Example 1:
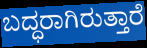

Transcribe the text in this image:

ಬದ್ಧರಾಗಿರುತ್ತಾರೆ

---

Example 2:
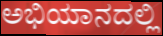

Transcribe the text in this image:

ಅಭಿಯಾನದಲ್ಲಿ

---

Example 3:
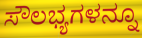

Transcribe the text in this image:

ಸೌಲಭ್ಯಗಳನ್ನೂ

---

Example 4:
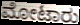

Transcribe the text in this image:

ಮೋಟಾರು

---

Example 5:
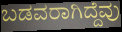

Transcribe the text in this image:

ಬಡವರಾಗಿದ್ದೆವು